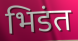
भिडंत